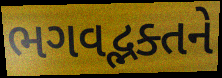
ભગવદ્ભક્તને